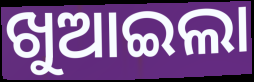
ଖୁଆଇଲା